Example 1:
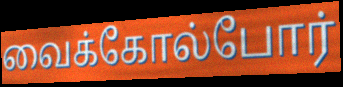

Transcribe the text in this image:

வைக்கோல்போர்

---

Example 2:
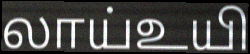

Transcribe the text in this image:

லாய்உயி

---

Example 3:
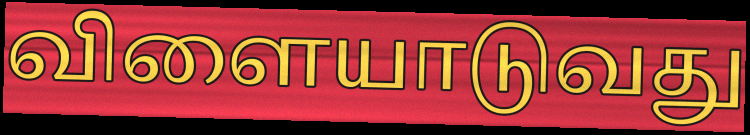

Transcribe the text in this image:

விளையாடுவது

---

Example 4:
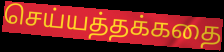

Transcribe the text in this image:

செய்யத்தக்கதை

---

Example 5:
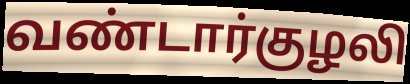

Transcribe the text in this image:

வண்டார்குழலி